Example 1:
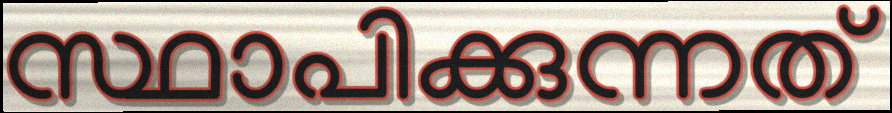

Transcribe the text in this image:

സ്ഥാപിക്കുന്നത്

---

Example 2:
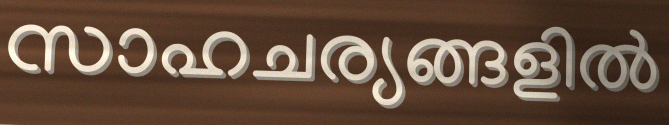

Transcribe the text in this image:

സാഹചര്യങ്ങളിൽ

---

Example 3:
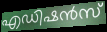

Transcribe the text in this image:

എഡിഷൻസ്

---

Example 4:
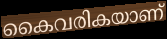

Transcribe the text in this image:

കൈവരികയാണ്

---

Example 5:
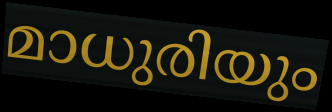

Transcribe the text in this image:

മാധുരിയും